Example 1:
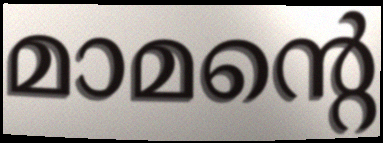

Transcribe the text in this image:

മാമന്റെ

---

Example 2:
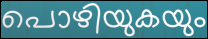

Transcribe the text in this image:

പൊഴിയുകയും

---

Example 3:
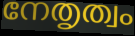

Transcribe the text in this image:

നേതൃത്വം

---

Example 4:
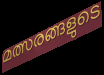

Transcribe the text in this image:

മത്സരങ്ങളുടെ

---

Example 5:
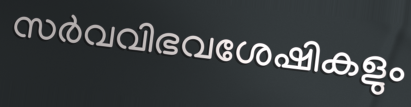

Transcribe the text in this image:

സർവവിഭവശേഷികളും